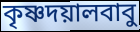
কৃষ্ণদয়ালবাবু